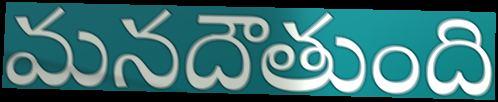
మనదౌతుంది